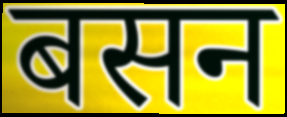
बसन